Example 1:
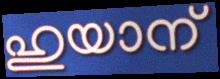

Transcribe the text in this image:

ഹുയാന്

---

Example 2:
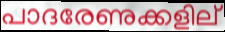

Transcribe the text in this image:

പാദരേണുക്കളില്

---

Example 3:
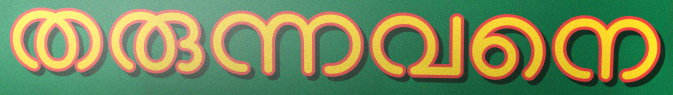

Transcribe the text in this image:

തരുന്നവനെ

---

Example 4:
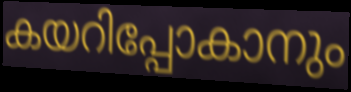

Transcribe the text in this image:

കയറിപ്പോകാനും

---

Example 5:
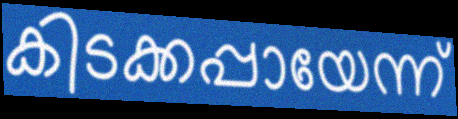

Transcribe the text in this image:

കിടക്കപ്പായേന്ന്